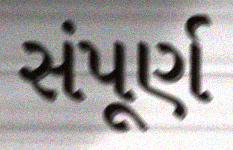
સંપૂર્ણ